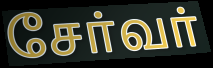
சேர்வர்